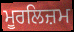
ਮੂਰਲਿਜ਼ਮ